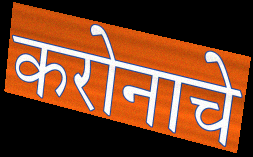
करोनाचे